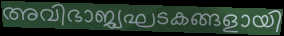
അവിഭാജ്യഘടകങ്ങളായി